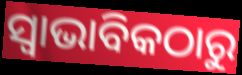
ସ୍ୱାଭାବିକଠାରୁ